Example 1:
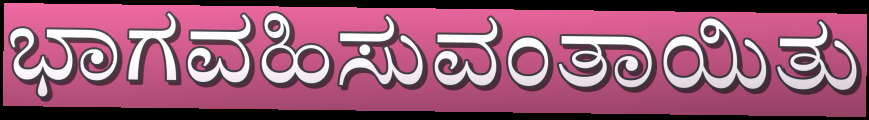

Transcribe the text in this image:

ಭಾಗವಹಿಸುವಂತಾಯಿತು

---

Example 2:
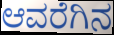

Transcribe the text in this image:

ಆವರೆಗಿನ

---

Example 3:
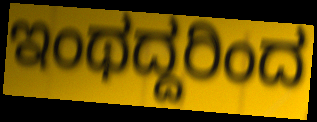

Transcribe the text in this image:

ಇಂಥದ್ದರಿಂದ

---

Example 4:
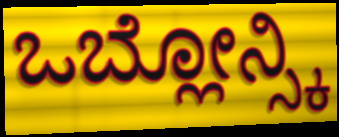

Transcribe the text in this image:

ಒಬ್ಲೋನ್ಸ್ಕಿ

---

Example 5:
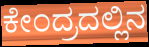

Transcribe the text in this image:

ಕೇಂದ್ರದಲ್ಲಿನ